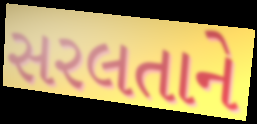
સરલતાને